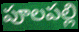
పూలపల్లి